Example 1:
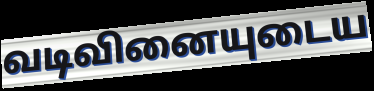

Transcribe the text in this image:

வடிவினையுடைய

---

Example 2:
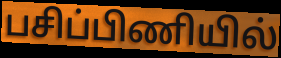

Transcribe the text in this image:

பசிப்பிணியில்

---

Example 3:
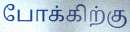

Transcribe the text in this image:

போக்கிற்கு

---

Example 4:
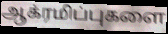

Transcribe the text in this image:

ஆக்ரமிப்புகளை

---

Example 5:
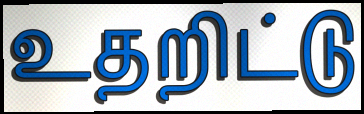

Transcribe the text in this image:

உதறிட்டு